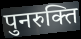
पुनरुक्ति